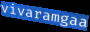
vivaramgaa